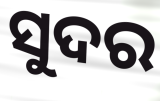
ସୁଦର